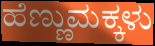
ಹೆಣ್ಣುಮಕ್ಕಳು